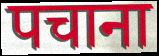
पचाना